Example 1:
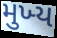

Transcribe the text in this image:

મુખ્‍ય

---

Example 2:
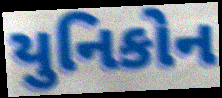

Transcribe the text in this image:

યુનિકોન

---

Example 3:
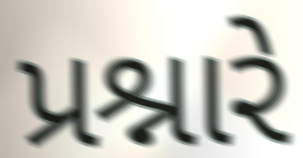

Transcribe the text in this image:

પ્રશ્નારે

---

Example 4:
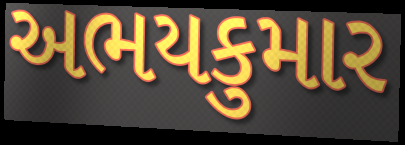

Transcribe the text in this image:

અભયકુમાર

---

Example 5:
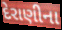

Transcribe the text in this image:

દેરાણીના